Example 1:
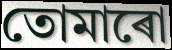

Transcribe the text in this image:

তোমাৰো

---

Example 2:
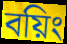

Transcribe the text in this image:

বয়িং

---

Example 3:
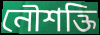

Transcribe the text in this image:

নৌশক্তি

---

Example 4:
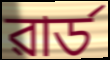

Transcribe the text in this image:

ৱাৰ্ড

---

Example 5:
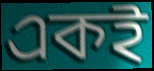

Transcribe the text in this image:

একই